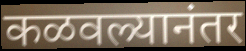
कळवल्यानंतर